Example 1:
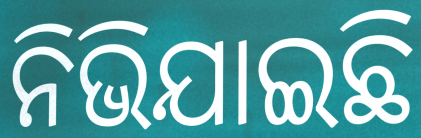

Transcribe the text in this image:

ନିଭିଯାଇଛି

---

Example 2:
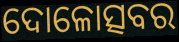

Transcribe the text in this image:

ଦୋଳୋତ୍ସବର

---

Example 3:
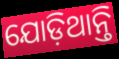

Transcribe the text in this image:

ଯୋଡ଼ିଥାନ୍ତି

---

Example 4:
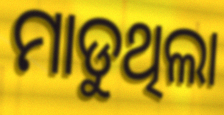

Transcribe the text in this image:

ମାଡୁଥିଲା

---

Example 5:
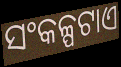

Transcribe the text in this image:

ସଂକଳ୍ପଟାଏ